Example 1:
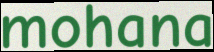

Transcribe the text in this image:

mohana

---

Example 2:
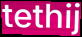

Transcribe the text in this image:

tethij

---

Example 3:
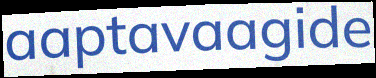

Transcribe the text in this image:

aaptavaagide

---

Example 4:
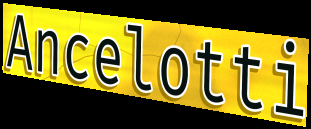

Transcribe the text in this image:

Ancelotti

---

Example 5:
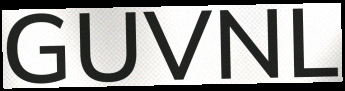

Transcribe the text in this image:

GUVNL